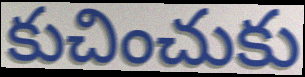
కుచించుకు